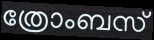
ത്രോംബസ്